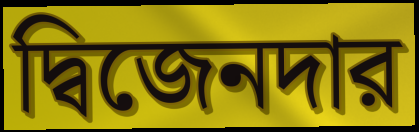
দ্বিজেনদার